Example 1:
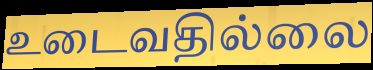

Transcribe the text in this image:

உடைவதில்லை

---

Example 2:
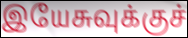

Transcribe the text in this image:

இயேசுவுக்குச்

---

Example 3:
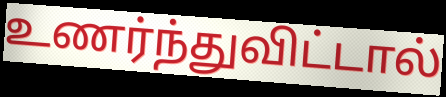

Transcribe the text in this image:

உணர்ந்துவிட்டால்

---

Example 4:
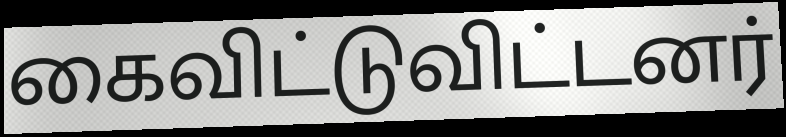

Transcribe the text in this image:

கைவிட்டுவிட்டனர்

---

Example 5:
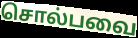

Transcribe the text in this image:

சொல்பவை